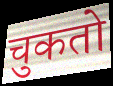
चुकतो